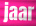
jaar